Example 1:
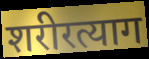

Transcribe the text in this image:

शरीरत्याग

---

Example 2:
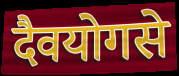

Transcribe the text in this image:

दैवयोगसे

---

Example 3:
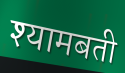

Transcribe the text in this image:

श्यामबती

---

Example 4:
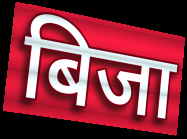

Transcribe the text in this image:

बिजा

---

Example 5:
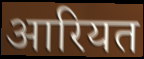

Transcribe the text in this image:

आरियत